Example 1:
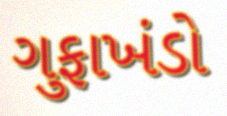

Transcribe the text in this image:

ગુફાખંડો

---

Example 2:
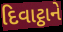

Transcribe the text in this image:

દિવાટ્ઠાને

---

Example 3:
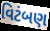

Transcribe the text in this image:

વિટંબણ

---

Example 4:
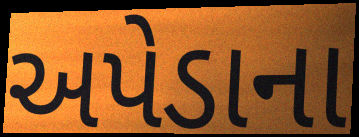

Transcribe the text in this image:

અપેડાના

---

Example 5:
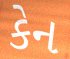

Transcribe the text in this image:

કેન